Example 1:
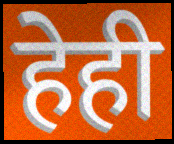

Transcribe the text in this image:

हेही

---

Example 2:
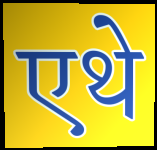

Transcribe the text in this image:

एथे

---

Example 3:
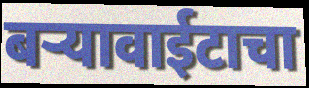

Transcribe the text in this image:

बऱ्यावाईटाचा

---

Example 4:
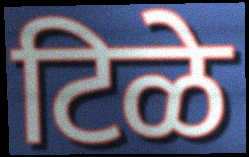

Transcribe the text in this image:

टिळे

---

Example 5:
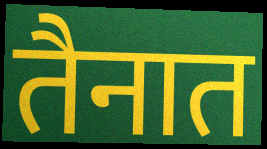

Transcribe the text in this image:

तैनात